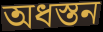
অধস্তন